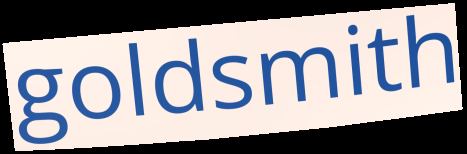
goldsmith